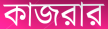
কাজরার